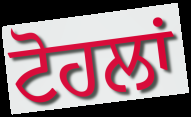
ਟੋਹਲਾਂ